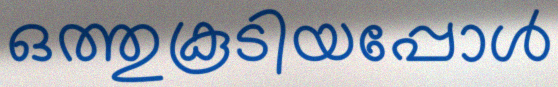
ഒത്തുകൂടിയപ്പോൾ